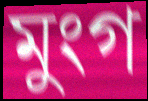
মুংগ